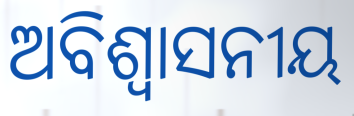
ଅବିଶ୍ୱାସନୀୟ